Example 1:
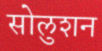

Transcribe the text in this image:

सोलुशन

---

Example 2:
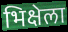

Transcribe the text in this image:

भिक्षेला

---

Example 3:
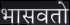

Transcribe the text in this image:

भासवतो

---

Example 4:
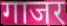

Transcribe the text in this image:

गाजर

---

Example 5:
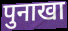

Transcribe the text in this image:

पुनाखा